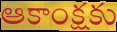
ఆకాంక్షకు